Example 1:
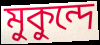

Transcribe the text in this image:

মুকুন্দে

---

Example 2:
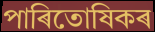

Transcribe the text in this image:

পাৰিতোষিকৰ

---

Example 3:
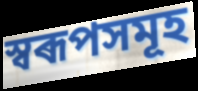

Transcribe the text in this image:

স্বৰূপসমূহ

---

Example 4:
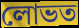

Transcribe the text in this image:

লোভত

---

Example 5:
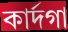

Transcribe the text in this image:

কাৰ্দগা